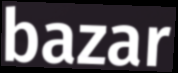
bazar